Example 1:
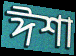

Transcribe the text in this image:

ঈশা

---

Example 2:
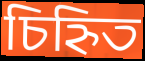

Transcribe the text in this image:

চিহ্নিত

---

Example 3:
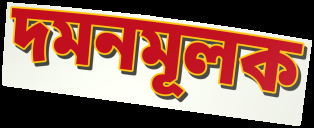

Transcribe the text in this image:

দমনমূলক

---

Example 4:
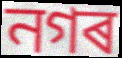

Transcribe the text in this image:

নগৰ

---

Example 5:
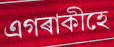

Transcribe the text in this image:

এগৰাকীহে